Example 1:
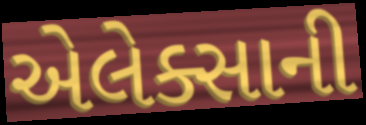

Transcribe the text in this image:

એલેક્સાની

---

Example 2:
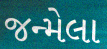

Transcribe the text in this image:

જન્મેલા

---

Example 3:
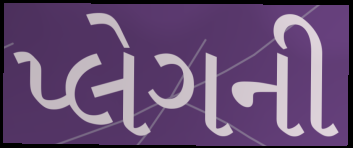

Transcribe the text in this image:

પ્લેગની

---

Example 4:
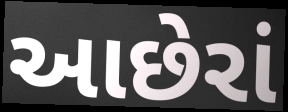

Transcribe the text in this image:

આછેરાં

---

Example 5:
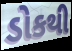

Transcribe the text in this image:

ડોકથી